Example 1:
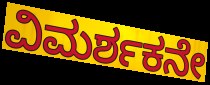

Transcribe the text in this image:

ವಿಮರ್ಶಕನೇ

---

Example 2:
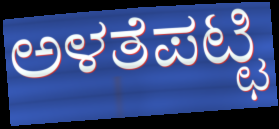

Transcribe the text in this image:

ಅಳತೆಪಟ್ಟಿ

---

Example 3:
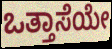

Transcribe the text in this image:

ಒತ್ತಾಸೆಯೇ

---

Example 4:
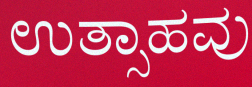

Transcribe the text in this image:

ಉತ್ಸಾಹವು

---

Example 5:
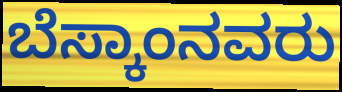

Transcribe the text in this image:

ಬೆಸ್ಕಾಂನವರು